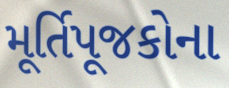
મૂર્તિપૂજકોના